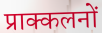
प्राक्कलनों